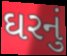
ઘરનું